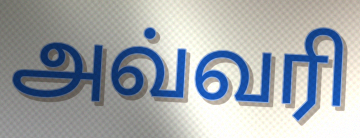
அவ்வரி